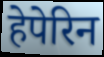
हेपेरिन